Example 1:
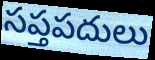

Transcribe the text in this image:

సప్తపదులు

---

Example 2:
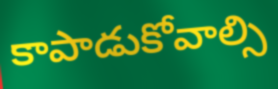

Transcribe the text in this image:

కాపాడుకోవాల్సి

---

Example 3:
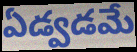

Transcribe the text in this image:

ఏడ్వడమే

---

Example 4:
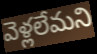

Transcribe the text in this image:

వెళ్లలేమని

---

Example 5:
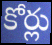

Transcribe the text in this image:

కోర్లు